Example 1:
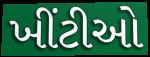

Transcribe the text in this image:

ખીંટીઓ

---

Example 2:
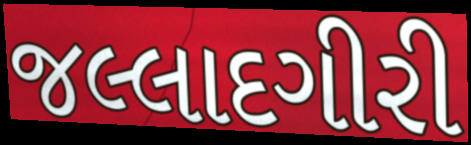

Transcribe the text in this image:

જલ્લાદગીરી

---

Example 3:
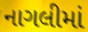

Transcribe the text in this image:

નાગલીમાં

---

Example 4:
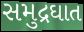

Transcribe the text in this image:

સમુદ્રઘાત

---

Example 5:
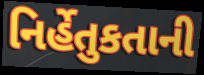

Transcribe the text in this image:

નિર્હેતુકતાની